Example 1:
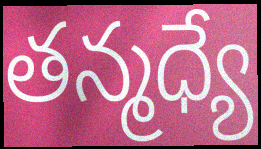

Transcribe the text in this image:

తన్మధ్యే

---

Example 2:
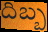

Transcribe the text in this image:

దిబ్బ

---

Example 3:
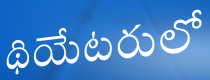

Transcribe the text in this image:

థియేటరులో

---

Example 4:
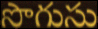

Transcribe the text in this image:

సొగుసు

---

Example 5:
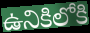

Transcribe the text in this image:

ఉనికిలోకి